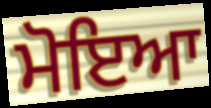
ਮੋਇਆ